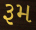
રૂમ